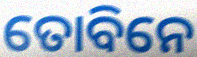
ତୋବିନେ